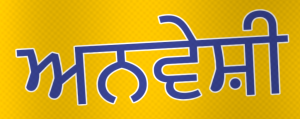
ਅਨਵੇਸ਼ੀ